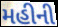
મહીની